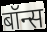
बॉन्स